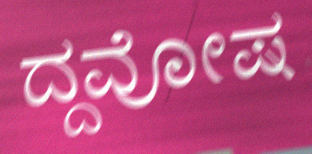
ದ್ದವೋಷ